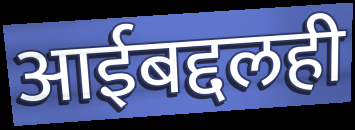
आईबद्दलही